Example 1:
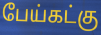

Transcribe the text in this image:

பேய்கட்கு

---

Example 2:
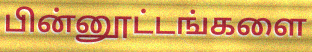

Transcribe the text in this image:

பின்னூட்டங்களை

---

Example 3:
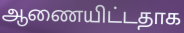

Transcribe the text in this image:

ஆணையிட்டதாக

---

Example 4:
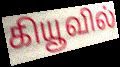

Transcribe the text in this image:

கியூவில்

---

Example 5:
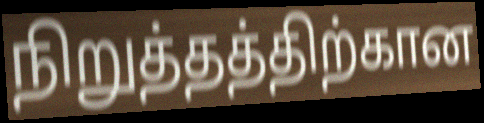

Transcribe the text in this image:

நிறுத்தத்திற்கான